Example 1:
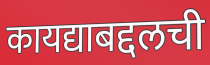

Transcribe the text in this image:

कायद्याबद्दलची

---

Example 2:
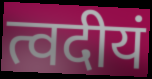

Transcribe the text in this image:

त्वदीयं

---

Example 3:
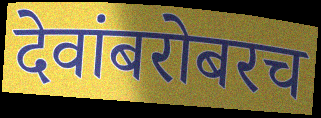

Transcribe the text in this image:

देवांबरोबरच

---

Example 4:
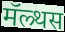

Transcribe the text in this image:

मॅल्थस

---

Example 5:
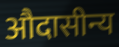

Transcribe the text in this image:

औदासीन्य